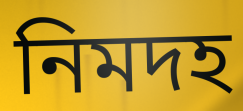
নিমদহ